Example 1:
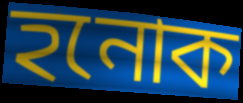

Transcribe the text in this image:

হনোক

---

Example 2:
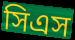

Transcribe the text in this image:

সিএস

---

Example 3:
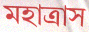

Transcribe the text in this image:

মহাত্রাস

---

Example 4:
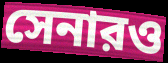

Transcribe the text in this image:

সেনারও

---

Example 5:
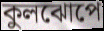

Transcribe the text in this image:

কুলঝোপে